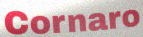
Cornaro